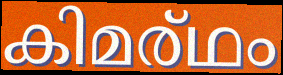
കിമര്ഥം